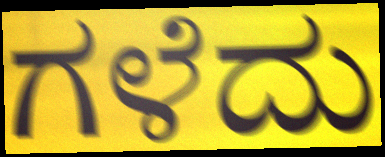
ಗಳೆದು